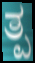
ತ್ಪ